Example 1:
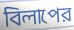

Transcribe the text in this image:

বিলাপের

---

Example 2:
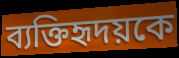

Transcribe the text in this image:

ব্যক্তিহৃদয়কে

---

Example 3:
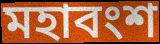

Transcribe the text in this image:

মহাবংশ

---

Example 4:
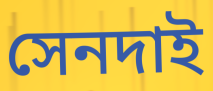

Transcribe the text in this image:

সেনদাই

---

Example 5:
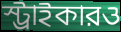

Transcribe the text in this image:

স্ট্রাইকারও